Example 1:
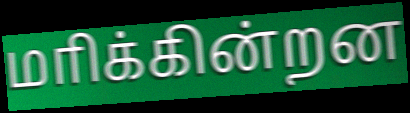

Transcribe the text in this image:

மரிக்கின்றன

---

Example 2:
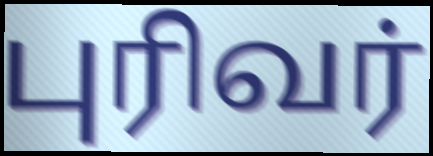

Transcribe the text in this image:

புரிவர்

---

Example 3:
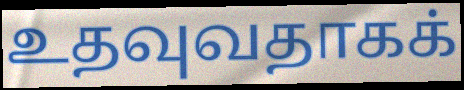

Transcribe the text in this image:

உதவுவதாகக்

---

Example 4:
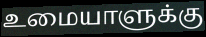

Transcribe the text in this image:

உமையாளுக்கு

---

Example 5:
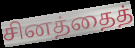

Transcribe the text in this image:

சினத்தைத்